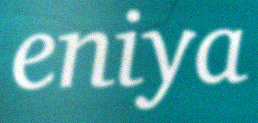
eniya